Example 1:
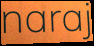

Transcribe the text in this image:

naraj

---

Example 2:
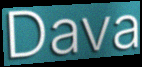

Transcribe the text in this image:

Dava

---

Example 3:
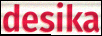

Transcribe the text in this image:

desika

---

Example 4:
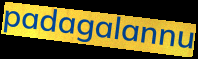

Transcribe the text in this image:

padagalannu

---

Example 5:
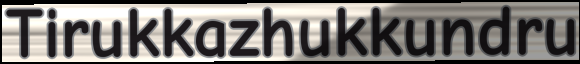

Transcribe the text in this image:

Tirukkazhukkundru